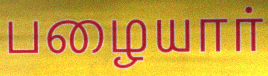
பழையார்